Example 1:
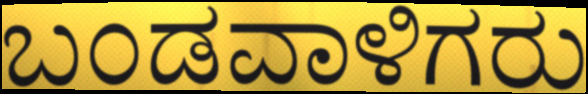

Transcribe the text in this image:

ಬಂಡವಾಳಿಗರು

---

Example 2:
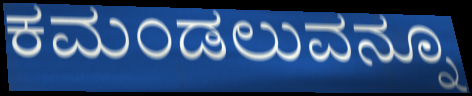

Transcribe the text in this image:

ಕಮಂಡಲುವನ್ನೂ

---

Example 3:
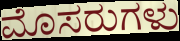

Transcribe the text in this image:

ಮೊಸರುಗಳು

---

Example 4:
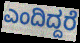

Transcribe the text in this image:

ಎಂದಿದ್ದರೆ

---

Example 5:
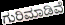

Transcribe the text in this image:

ಗುರಿಮಾಡಿವೆ